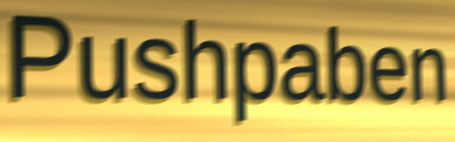
Pushpaben